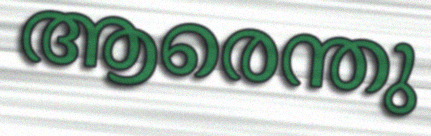
ആരെന്തു